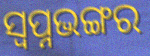
ସ୍ୱପ୍ନଭଙ୍ଗର